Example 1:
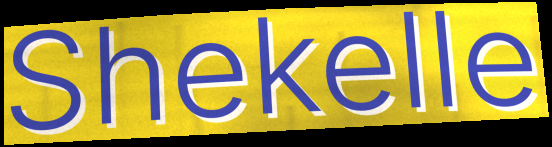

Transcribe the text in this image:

Shekelle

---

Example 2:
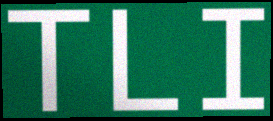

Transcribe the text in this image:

TLI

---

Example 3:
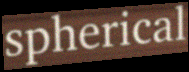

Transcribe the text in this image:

spherical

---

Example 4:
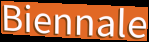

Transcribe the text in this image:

Biennale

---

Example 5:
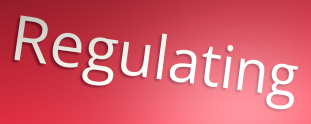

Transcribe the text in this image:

Regulating